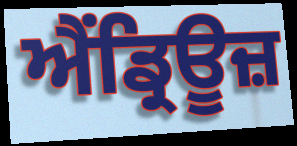
ਐਂਡ੍ਰਿਊਜ਼